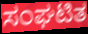
ಸಂಘಟಿತ